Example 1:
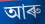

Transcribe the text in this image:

আৰু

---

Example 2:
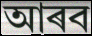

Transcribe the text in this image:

আৰব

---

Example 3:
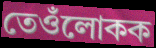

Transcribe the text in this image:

তেওঁলোকক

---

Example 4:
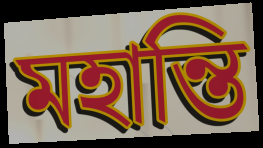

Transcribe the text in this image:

মহান্তি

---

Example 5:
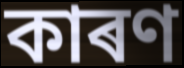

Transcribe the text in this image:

কাৰণ